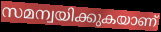
സമന്വയിക്കുകയാണ്